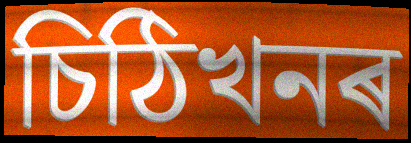
চিঠিখনৰ